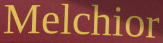
Melchior